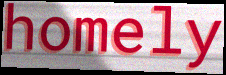
homely